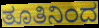
ತೂತಿನಿಂದ